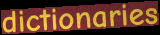
dictionaries